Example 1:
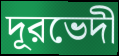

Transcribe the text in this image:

দূরভেদী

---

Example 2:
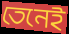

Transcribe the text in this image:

তেনেই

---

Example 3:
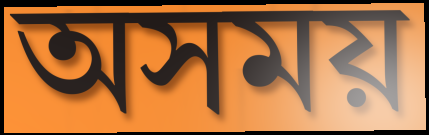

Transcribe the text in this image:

অসময়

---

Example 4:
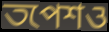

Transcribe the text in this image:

তপেশও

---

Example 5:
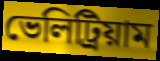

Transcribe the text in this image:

ভেলিট্রিয়াম